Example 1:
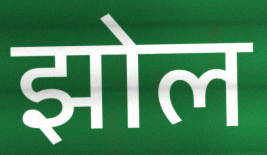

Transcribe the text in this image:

झोल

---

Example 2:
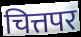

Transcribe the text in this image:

चित्तपर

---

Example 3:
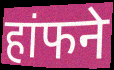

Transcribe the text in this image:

हांफने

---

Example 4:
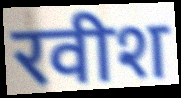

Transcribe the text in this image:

रवीश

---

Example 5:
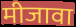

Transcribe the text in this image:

मीजावा